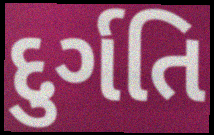
દુર્ગતિ